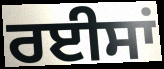
ਰਈਸਾਂ